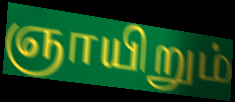
ஞாயிறும்